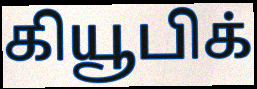
கியூபிக்